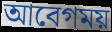
আবেগময়